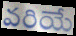
వరియే